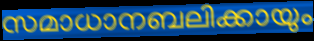
സമാധാനബലിക്കായും